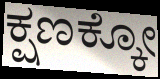
ಕ್ಷಣಕ್ಕೋ